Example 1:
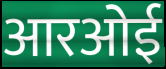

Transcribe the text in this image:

आरओई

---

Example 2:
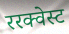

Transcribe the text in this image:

ररक्वेस्ट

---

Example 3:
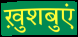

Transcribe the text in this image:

ख़ुशबुएं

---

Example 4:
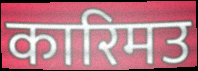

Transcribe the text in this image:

कारिमउ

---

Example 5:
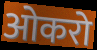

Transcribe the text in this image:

ओकरो